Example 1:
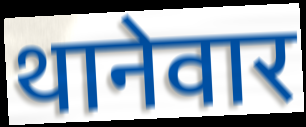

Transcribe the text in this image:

थानेवार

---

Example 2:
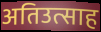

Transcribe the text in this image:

अतिउत्साह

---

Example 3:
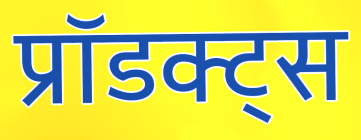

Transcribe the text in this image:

प्रॉडक्ट्स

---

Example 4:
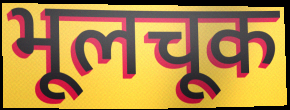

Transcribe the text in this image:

भूलचूक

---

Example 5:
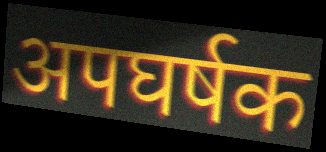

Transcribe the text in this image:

अपघर्षक